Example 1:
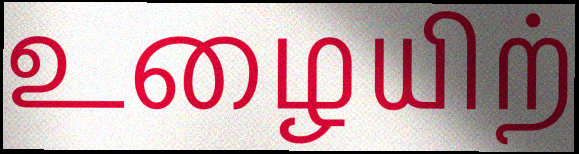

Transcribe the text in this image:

உழையிற்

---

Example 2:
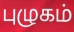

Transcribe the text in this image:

புழுகம்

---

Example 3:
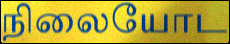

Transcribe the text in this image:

நிலையோட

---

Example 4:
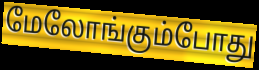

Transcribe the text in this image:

மேலோங்கும்போது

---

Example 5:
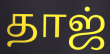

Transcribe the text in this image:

தாஜ்